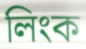
লিংক